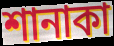
শানাকা